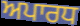
ਅਪਾਰਧ